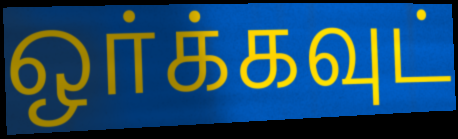
ஒர்க்கவுட்